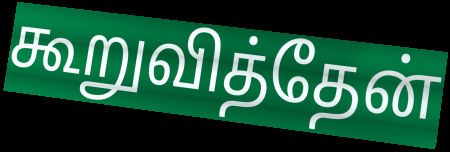
கூறுவித்தேன்